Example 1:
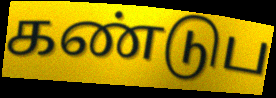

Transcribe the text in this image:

கண்டுப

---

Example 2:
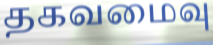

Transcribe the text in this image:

தகவமைவு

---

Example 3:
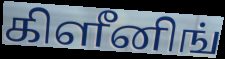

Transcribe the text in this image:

கிளீனிங்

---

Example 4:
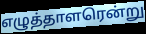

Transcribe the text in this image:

எழுத்தாளரென்று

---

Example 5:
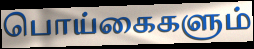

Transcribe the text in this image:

பொய்கைகளும்